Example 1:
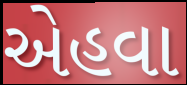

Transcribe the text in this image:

એહવા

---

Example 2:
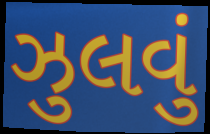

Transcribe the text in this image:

ઝુલવું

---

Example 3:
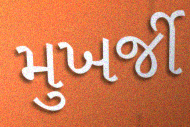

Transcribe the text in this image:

મુખર્જી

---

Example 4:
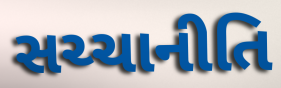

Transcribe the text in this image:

સચ્ચાનીતિ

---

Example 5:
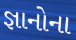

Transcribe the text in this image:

જ્ઞાનોના